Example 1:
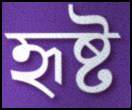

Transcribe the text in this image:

হৃষ্ট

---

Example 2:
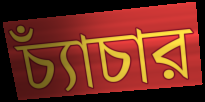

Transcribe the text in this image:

চ্যাঁচার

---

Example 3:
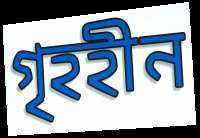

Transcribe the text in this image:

গৃহহীন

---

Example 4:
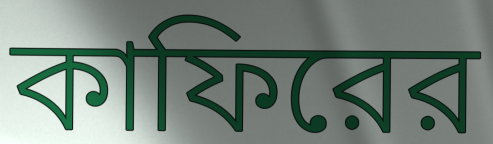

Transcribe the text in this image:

কাফিরের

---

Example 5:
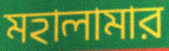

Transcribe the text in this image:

মহালামার